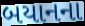
બયાનના